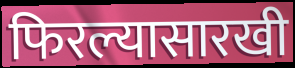
फिरल्यासारखी